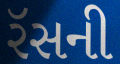
રૅસની